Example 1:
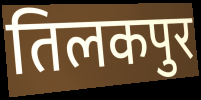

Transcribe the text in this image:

तिलकपुर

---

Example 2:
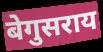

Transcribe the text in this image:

बेगुसराय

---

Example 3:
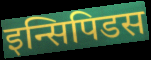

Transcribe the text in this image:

इन्सिपिडस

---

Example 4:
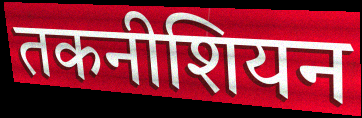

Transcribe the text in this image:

तकनीशियन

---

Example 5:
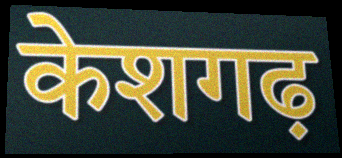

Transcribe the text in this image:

केशगढ़